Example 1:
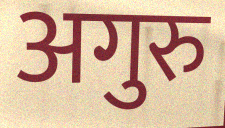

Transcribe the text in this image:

अगुरु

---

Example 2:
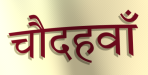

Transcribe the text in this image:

चौदहवाँ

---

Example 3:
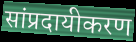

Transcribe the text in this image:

सांप्रदायीकरण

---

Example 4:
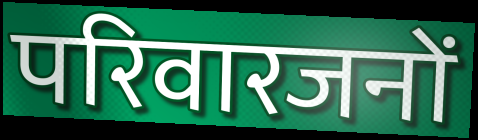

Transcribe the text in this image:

परिवारजनों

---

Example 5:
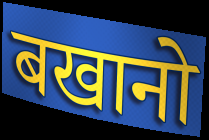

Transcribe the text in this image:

बखानो